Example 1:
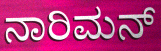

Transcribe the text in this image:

ನಾರಿಮನ್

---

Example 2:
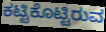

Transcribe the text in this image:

ಕಟ್ಟಿಕೊಟ್ಟಿರುವ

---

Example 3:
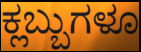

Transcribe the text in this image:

ಕ್ಲಬ್ಬುಗಳೂ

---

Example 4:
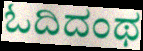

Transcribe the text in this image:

ಓದಿದಂಥ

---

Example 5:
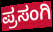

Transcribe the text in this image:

ಪ್ರಸಂಗಿ